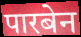
पारबेन